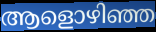
ആളൊഴിഞ്ഞ